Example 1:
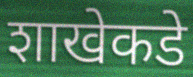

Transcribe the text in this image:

शाखेकडे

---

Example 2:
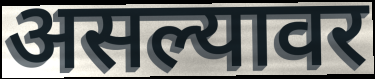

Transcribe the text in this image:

असल्यावर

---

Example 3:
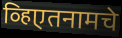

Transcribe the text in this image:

व्हिएतनामचे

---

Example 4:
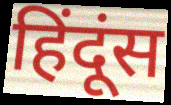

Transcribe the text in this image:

हिंदूंस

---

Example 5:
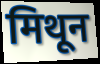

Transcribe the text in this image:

मिथून